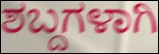
ಶಬ್ದಗಳಾಗಿ